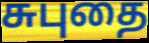
சுபுதை